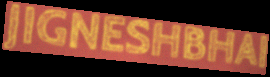
JIGNESHBHAI